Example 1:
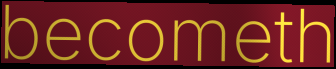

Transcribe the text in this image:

becometh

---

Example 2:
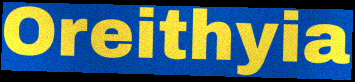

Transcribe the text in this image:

Oreithyia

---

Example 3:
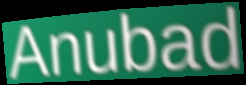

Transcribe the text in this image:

Anubad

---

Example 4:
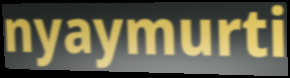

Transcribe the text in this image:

nyaymurti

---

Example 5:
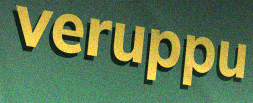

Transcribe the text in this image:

veruppu